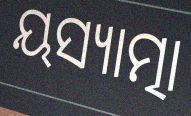
ୟସ୍ୟାତ୍ମା